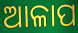
ଆଳାପ